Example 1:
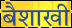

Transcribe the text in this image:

बैशाखी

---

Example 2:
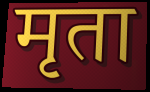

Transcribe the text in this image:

मृता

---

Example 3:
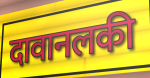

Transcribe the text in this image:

दावानलकी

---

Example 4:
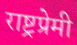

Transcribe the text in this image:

राष्ट्रप्रेमी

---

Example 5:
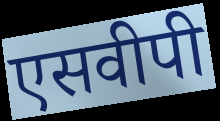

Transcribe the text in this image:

एसवीपी